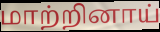
மாற்றினாய்